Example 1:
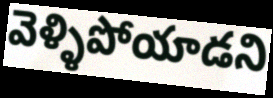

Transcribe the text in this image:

వెళ్ళిపోయాడని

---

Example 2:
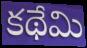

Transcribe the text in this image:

కథేమి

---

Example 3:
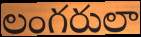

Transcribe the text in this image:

లంగరులా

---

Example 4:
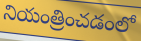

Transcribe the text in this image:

నియంత్రించడంలో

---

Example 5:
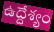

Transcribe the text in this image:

ఉద్దేశ్యం